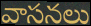
వాసనలు